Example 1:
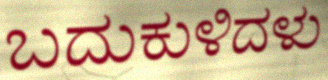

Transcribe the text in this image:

ಬದುಕುಳಿದಳು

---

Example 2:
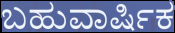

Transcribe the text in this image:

ಬಹುವಾರ್ಷಿಕ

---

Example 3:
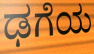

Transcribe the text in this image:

ಢಗೆಯ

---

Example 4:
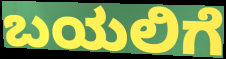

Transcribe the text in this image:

ಬಯಲಿಗೆ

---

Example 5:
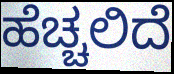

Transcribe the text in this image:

ಹೆಚ್ಚಲಿದೆ